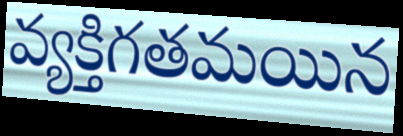
వ్యక్తిగతమయిన